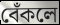
বেঁকলে